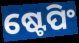
ଷ୍ଟେପିଂ